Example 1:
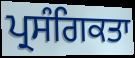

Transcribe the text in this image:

ਪ੍ਰਸੰਗਿਕਤਾ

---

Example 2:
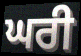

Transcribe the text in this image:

ਘਰੀ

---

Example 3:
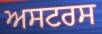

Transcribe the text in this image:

ਅਸਟਰਸ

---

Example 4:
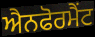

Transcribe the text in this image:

ਐਨਫੋਰਮੈਂਟ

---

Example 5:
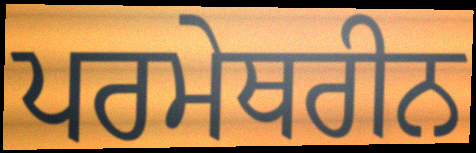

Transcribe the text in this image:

ਪਰਮੇਥਰੀਨ